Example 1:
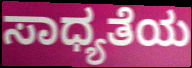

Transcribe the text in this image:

ಸಾಧ್ಯತೆಯ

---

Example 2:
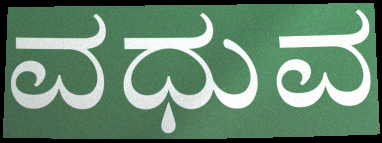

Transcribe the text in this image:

ವಧುವ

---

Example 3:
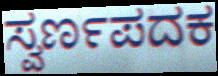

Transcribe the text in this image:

ಸ್ವರ್ಣಪದಕ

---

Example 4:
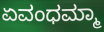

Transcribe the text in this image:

ಏವಂಧಮ್ಮಾ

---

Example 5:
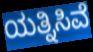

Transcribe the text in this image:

ಯತ್ನಿಸಿವೆ